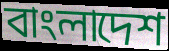
বাংলাদেশ